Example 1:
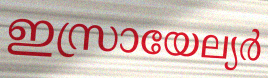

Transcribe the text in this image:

ഇസ്രായേല്യർ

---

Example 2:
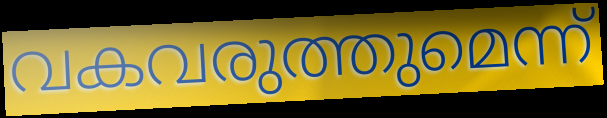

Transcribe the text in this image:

വകവരുത്തുമെന്ന്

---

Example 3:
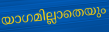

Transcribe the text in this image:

യാഗമില്ലാതെയും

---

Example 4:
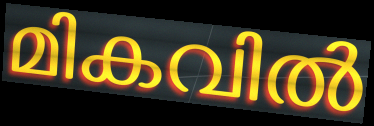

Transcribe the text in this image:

മികവിൽ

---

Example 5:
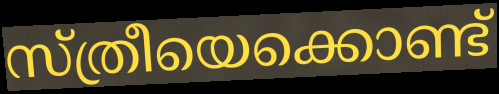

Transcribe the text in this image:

സ്ത്രീയെക്കൊണ്ട്